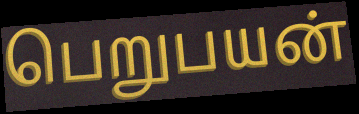
பெறுபயன்